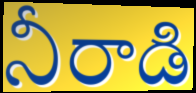
నీరాడి